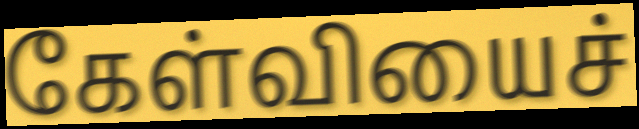
கேள்வியைச்